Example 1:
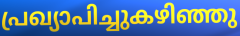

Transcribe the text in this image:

പ്രഖ്യാപിച്ചുകഴിഞ്ഞു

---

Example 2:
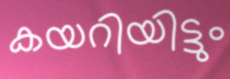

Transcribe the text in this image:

കയറിയിട്ടും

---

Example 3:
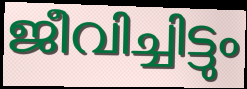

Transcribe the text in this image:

ജീവിച്ചിട്ടും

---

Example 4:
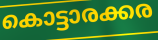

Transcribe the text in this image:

കൊട്ടാരക്കര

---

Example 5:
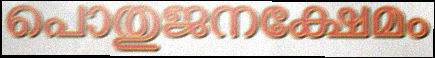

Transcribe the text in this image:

പൊതുജനക്ഷേമം